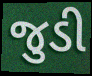
જુડી